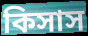
কিসাস